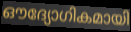
ഔദ്യോഗികമായി